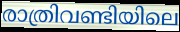
രാത്രിവണ്ടിയിലെ